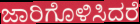
ಜಾರಿಗೊಳಿಸಿದರೆ